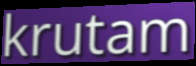
krutam